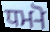
ਧਮ੍ਮੋ